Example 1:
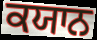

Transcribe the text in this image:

ਕਯਾਨ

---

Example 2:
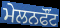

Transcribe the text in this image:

ਮੇਲਨਫੌਂਟ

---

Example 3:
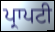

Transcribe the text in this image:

ਪ੍ਰਾਪਟੀ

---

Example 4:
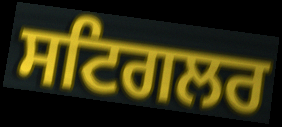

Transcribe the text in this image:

ਸਟਿਗਲਰ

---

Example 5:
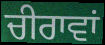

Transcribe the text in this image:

ਚੀਰਾਵਾਂ